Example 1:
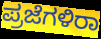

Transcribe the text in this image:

ಪ್ರಜೆಗಳಿರಾ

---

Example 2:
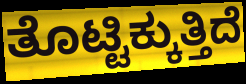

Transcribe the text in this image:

ತೊಟ್ಟಿಕ್ಕುತ್ತಿದೆ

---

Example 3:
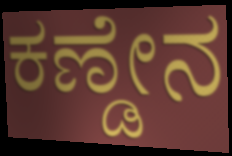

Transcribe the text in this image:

ಕಣ್ಡೇನ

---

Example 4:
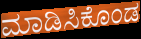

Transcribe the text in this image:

ಮಾಡಿಸಿಕೊಂಡ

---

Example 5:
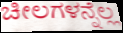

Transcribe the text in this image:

ಚೀಲಗಳನ್ನೆಲ್ಲ